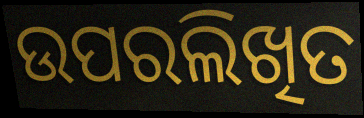
ଉପରଲିଖିତ